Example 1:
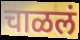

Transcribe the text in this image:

चाळलं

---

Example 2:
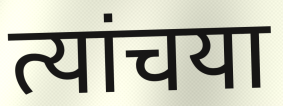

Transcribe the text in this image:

त्यांचया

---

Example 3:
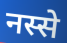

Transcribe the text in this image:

नस्से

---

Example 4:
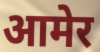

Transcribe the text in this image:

आमेर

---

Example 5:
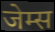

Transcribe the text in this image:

जेम्स